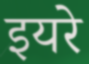
इयरे